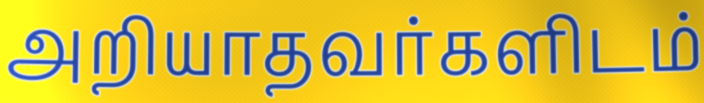
அறியாதவர்களிடம்